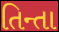
તિન્તા